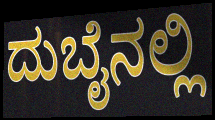
ದುಬೈನಲ್ಲಿ